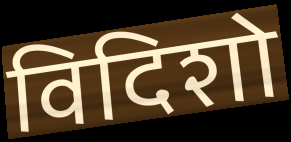
विदिशो